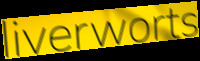
liverworts